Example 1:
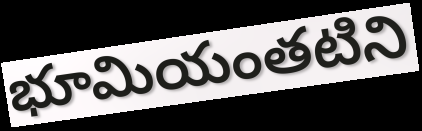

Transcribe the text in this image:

భూమియంతటిని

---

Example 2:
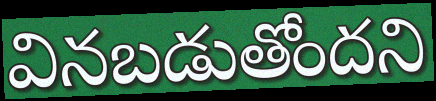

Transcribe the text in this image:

వినబడుతోందని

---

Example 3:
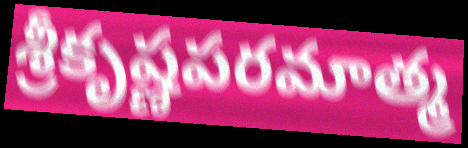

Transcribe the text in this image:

శ్రీకృష్ణపరమాత్మ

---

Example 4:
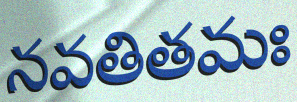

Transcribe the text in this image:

నవతితమః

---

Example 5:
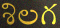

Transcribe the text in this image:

శిలగ